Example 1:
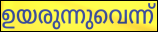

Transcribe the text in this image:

ഉയരുന്നുവെന്ന്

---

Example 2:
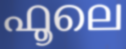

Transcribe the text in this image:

ഫൂലെ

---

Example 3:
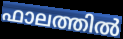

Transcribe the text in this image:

ഫാലത്തിൽ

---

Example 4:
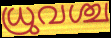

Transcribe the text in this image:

ധ്രുവശ്ച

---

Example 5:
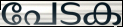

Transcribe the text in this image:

പേടക